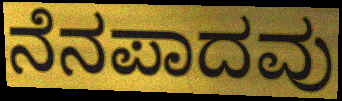
ನೆನಪಾದವು